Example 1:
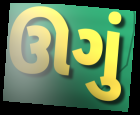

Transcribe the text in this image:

ઊગું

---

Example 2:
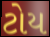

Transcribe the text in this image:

ટોય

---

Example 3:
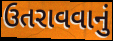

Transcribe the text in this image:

ઉતરાવવાનું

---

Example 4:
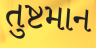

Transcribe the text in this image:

તુષ્ટમાન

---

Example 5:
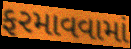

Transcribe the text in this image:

ફરમાવવામાં